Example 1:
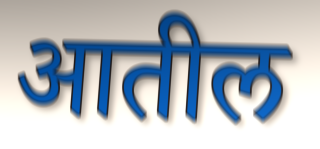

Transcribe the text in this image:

आतील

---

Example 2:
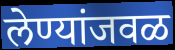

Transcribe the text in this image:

लेण्यांजवळ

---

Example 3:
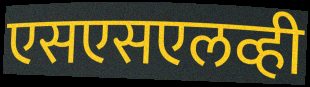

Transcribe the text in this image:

एसएसएलव्ही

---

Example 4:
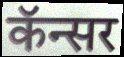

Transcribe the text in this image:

कॅन्सर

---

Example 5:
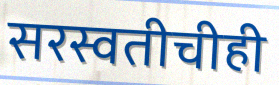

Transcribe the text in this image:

सरस्वतीचीही